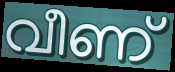
വീണ്